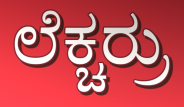
ಲೆಕ್ಚರ್ರು